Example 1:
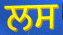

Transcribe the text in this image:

ਲਸ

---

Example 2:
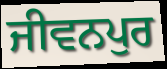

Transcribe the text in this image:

ਜੀਵਨਪੁਰ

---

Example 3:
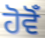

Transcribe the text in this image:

ਹੋਵੋਁ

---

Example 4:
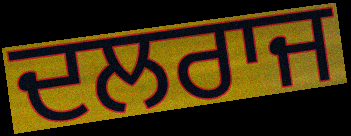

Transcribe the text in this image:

ਦਲਰਾਜ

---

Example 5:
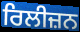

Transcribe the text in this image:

ਰਿਲੀਜ਼ਨ